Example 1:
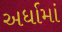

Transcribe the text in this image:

અર્ધામાં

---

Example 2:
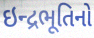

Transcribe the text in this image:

ઇન્દ્રભૂતિનો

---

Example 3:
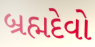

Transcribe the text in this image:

બ્રહ્મદેવો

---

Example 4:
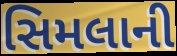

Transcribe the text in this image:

સિમલાની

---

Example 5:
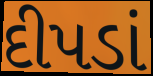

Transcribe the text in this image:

દીપડાં